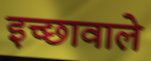
इच्छावाले